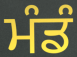
ਮੰਡੰ